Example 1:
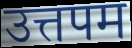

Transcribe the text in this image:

उत्तपम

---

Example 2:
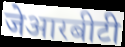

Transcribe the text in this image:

जेआरबीटी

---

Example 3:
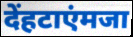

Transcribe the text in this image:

देंहटाएंमजा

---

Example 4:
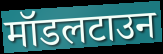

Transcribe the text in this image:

मॉडलटाउन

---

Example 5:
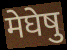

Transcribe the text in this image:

मेघेषु